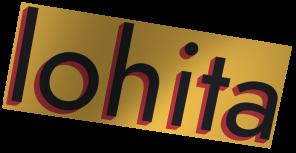
lohita